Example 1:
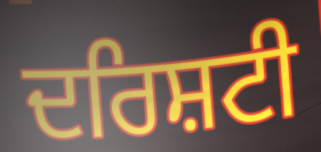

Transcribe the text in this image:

ਦਰਿਸ਼ਟੀ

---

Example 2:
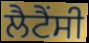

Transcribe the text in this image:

ਲੈਟੈਂਸੀ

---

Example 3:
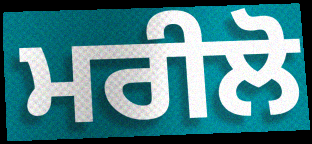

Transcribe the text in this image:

ਮਰੀਲੋ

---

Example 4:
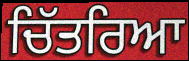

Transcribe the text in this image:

ਚਿੱਤਰਿਆ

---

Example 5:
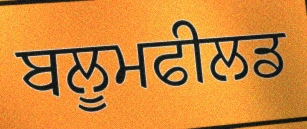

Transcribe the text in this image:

ਬਲੂਮਫੀਲਡ